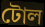
টোল